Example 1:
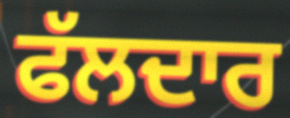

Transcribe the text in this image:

ਫੱਲਦਾਰ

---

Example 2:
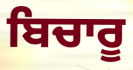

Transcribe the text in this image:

ਬਿਚਾਰੂ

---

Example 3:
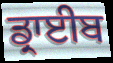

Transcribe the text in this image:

ਡ੍ਰਾਈਬ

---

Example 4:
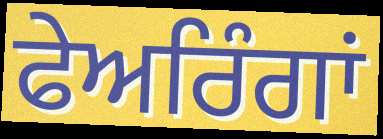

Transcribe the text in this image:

ਫੇਅਰਿੰਗਾਂ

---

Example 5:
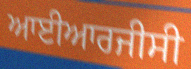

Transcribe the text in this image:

ਆਈਆਰਜੀਸੀ